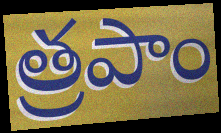
త్రపాం